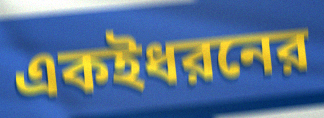
একইধরনের